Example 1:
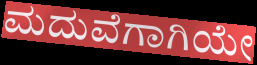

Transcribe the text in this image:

ಮದುವೆಗಾಗಿಯೇ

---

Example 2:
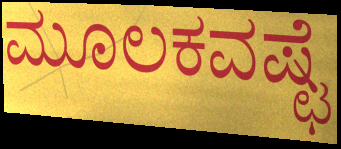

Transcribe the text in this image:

ಮೂಲಕವಷ್ಟೆ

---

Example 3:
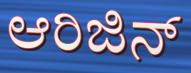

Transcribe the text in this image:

ಆರಿಜಿನ್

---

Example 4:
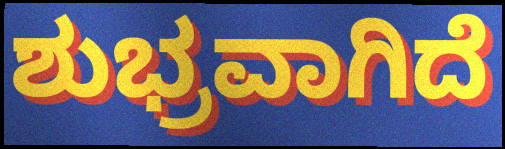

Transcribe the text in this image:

ಶುಭ್ರವಾಗಿದೆ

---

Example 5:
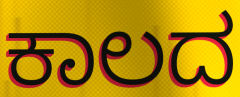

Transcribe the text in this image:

ಕಾಲದ